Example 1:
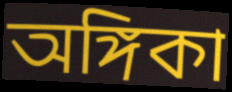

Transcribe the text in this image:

অঙ্গিকা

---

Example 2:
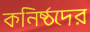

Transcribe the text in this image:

কনিষ্ঠদের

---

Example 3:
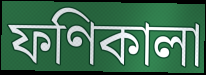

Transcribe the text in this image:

ফণিকালা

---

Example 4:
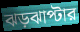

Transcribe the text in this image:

ঝড়ঝাপ্টার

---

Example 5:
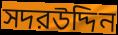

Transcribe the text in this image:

সদরউদ্দিন